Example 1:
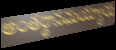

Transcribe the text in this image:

అంతర్థానమయ్యారు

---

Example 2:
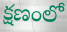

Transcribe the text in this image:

క్షణంలో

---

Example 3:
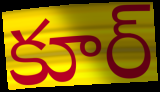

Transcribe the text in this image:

కూర్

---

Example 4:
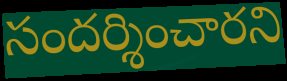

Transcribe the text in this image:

సందర్శించారని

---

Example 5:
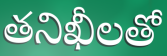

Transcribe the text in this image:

తనిఖీలతో